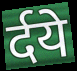
र्दये